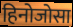
हिनोजोसा